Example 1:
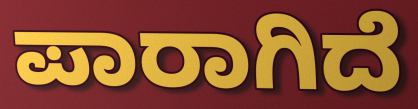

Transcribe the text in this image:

ಪಾರಾಗಿದೆ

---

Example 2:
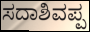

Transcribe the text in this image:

ಸದಾಶಿವಪ್ಪ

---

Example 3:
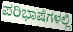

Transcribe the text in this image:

ಪರಿಭಾಷೆಗಳಲ್ಲಿ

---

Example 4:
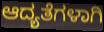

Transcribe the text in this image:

ಆದ್ಯತೆಗಳಾಗಿ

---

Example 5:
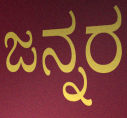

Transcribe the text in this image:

ಜನ್ನರ